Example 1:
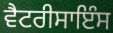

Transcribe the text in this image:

ਵੈਟਰੀਸਾਇੰਸ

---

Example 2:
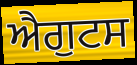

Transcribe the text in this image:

ਐਗੁਟਸ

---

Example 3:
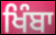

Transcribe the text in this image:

ਖਿੰਬਾ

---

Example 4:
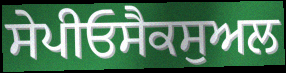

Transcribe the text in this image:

ਸੇਪੀਓਸੈਕਸੁਅਲ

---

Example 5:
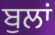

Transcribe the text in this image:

ਬੁਲਾਂ